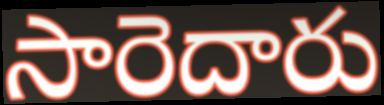
సారెదారు